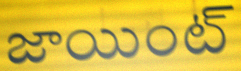
జాయింట్